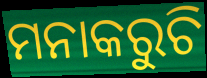
ମନାକରୁଚି